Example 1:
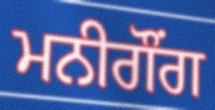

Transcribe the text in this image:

ਮਨੀਗੌਂਗ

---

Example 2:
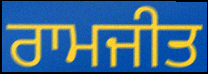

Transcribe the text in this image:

ਰਾਮਜੀਤ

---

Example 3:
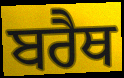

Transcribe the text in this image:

ਬਰੈਥ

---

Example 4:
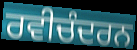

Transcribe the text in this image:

ਰਵੀਚੰਦਰਨ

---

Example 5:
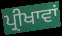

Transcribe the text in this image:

ਪ੍ਰੀਖਾਵਾਂ